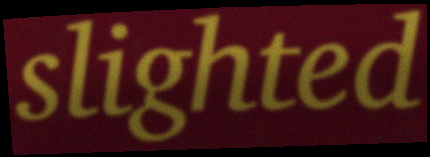
slighted